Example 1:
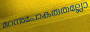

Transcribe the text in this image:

മറന്നുപോകരുതല്ലോ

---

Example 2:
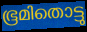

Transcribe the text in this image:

ഭൂമിതൊട്ടു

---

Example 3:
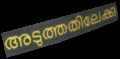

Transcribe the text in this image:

അടുത്തതിലേക്കു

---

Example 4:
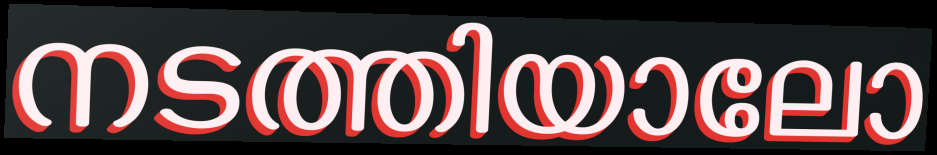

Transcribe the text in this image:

നടത്തിയാലോ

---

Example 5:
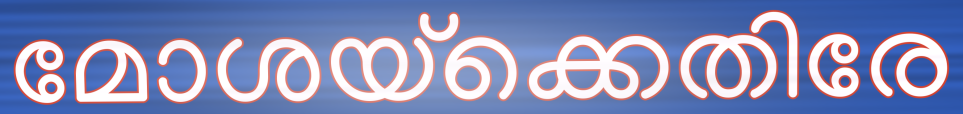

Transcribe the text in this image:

മോശയ്‌ക്കെതിരേ